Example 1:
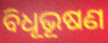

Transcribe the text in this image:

ବିଧୂଭୂଷଣ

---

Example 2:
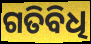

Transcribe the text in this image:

ଗତିବିଧି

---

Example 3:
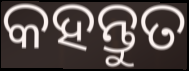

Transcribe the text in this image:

କହନ୍ତୁତ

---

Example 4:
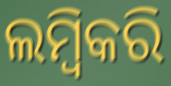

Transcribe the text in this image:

ଲମ୍ବିକରି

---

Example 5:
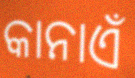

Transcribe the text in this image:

କାନାଏଁ